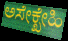
ಅಸೇಕ್ಖೇಹಿ